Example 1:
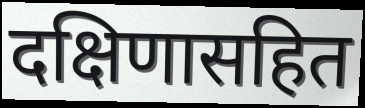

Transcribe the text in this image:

दक्षिणासहित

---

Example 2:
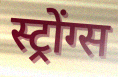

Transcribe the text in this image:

स्ट्रोंग्स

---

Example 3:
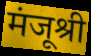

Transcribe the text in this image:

मंजूश्री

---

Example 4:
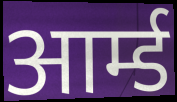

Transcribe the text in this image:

आर्म्ड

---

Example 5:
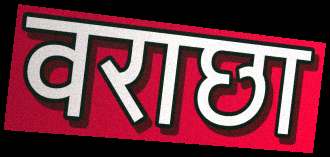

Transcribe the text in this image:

वराछा